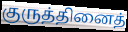
குருத்தினைத்